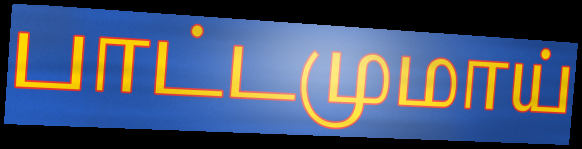
பாட்டமுமாய்